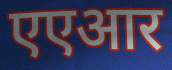
एएआर